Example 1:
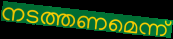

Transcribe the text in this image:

നടത്തണമെന്ന്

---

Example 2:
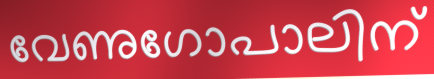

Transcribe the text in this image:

വേണുഗോപാലിന്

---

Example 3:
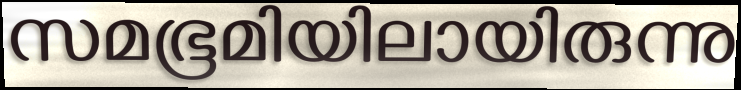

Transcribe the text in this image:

സമഭൂമിയിലായിരുന്നു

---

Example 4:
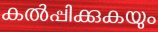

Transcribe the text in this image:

കൽപ്പിക്കുകയും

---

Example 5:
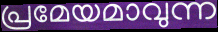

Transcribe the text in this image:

പ്രമേയമാവുന്ന